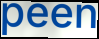
peen